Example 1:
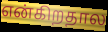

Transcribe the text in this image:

என்கிறதால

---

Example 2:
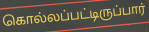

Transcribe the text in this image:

கொல்லப்பட்டிருப்பார்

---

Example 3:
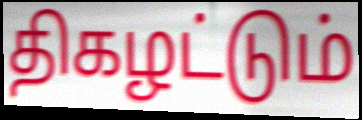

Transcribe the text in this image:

திகழட்டும்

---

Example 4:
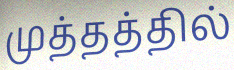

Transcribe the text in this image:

முத்தத்தில்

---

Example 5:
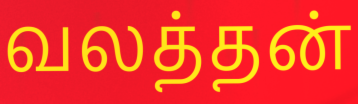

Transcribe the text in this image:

வலத்தன்